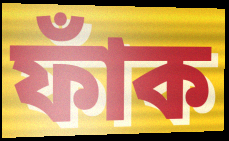
ফাঁক